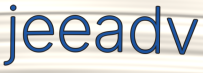
jeeadv